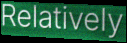
Relatively